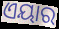
ଏୟାର